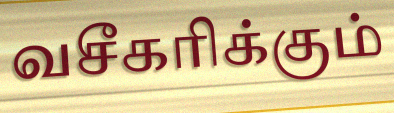
வசீகரிக்கும்